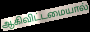
ஆகிவிட்டமையால்